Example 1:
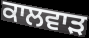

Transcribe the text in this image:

ਕਾਲਵਾੜ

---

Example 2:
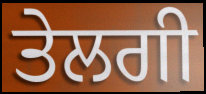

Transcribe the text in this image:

ਤੇਲਗੀ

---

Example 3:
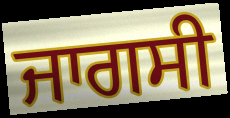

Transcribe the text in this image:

ਜਾਗਸੀ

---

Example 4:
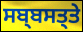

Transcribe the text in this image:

ਸਬ੍ਬਸਤ੍ਤੇ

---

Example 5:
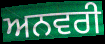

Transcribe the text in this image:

ਅਨਵਰੀ